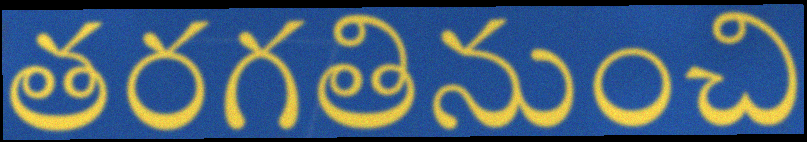
తరగతినుంచి